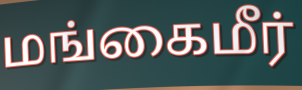
மங்கைமீர்